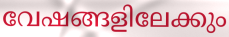
വേഷങ്ങളിലേക്കും